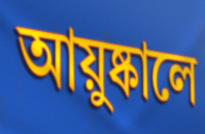
আয়ুষ্কালে